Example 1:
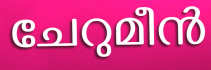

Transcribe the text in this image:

ചേറുമീൻ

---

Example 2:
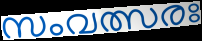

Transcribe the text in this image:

സംവത്സരഃ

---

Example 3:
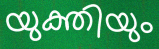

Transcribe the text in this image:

യുക്തിയും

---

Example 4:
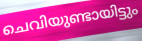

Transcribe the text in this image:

ചെവിയുണ്ടായിട്ടും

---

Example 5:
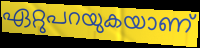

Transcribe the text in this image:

ഏറ്റുപറയുകയാണ്